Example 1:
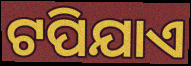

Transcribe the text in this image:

ଟପିଯାଏ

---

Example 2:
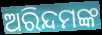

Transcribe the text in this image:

ଅରିନ୍ଦମଙ୍କ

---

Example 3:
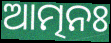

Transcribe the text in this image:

ଆତ୍ମନଃ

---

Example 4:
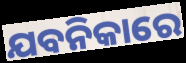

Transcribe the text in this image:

ଯବନିକାରେ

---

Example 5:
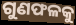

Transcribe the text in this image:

ଗୁଣଫଳକୁ